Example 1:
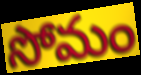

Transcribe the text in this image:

సోమం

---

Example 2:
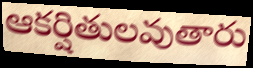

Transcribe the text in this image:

ఆకర్షితులవుతారు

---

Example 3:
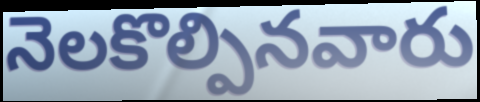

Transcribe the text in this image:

నెలకొల్పినవారు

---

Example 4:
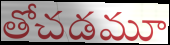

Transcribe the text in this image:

తోచడమూ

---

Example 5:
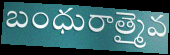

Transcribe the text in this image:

బంధురాత్మైవ